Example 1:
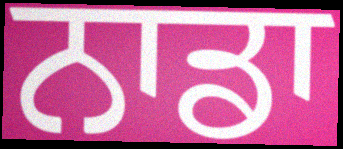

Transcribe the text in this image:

ਨਾਡਾ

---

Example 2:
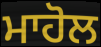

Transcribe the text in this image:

ਮਾਹੋਲ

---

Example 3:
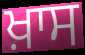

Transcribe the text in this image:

ਖ਼ਾਸ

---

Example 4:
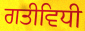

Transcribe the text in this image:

ਗਤੀਵਿਧੀ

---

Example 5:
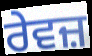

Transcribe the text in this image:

ਰੇਵਜ਼